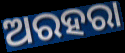
ଅରହରା